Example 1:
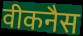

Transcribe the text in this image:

वीकनैस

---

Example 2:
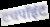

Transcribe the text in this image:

टचपॉइंट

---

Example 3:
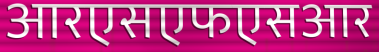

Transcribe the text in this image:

आरएसएफएसआर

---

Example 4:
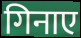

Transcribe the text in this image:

गिनाए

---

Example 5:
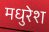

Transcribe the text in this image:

मधुरेश